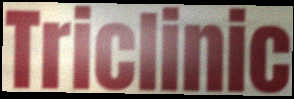
Triclinic